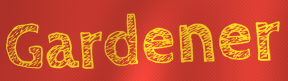
Gardener